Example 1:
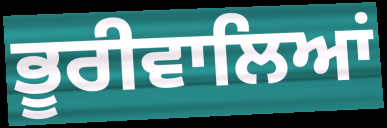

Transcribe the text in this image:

ਭੂਰੀਵਾਲਿਆਂ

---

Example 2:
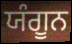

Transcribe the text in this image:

ਯੰਗੂਨ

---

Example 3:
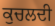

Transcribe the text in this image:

ਕੁਚਲਦੀ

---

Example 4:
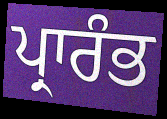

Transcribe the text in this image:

ਪ੍ਰਾਰੰਭ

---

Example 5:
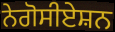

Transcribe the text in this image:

ਨੇਗੋਸੀਏਸ਼ਨ